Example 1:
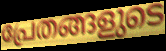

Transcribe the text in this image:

പ്രേതങ്ങളുടെ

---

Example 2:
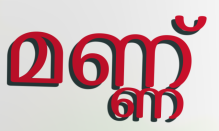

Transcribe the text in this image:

മണ്ണ്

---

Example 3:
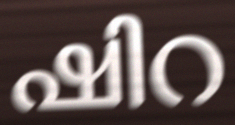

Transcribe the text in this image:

ഷിറ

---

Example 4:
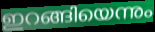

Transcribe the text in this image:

ഇറങ്ങിയെന്നും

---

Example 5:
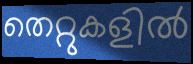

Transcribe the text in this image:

തെറ്റുകളിൽ